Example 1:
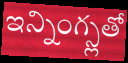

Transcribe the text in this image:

ఇన్నింగ్స్లతో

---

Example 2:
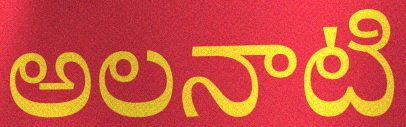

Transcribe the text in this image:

అలనాటి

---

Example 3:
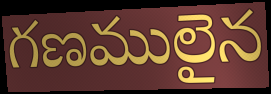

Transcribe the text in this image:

గణములైన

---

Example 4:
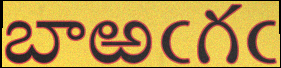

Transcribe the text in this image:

బాఱఁగఁ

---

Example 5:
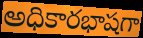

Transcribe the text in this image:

అధికారభాషగా